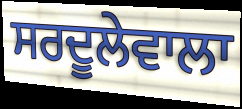
ਸਰਦੂਲੇਵਾਲਾ